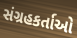
સંગ્રહકર્તાઓ